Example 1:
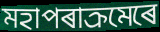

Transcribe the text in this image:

মহাপৰাক্ৰমেৰে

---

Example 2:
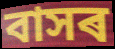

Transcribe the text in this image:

বাসৰ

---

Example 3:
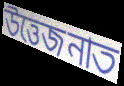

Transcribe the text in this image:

উত্তেজনাত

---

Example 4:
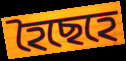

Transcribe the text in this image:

হৈছেহে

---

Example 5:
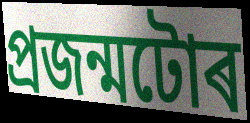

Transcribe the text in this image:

প্ৰজন্মটোৰ